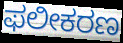
ಫಲೀಕರಣ